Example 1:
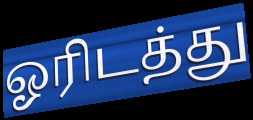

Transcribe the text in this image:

ஓரிடத்து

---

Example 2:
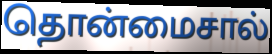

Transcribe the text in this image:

தொன்மைசால்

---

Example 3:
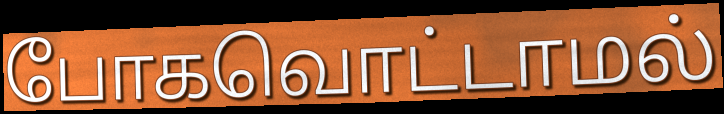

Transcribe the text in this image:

போகவொட்டாமல்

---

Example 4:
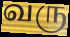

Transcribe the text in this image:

வரு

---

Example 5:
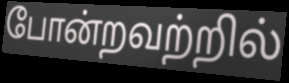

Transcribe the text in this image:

போன்றவற்றில்